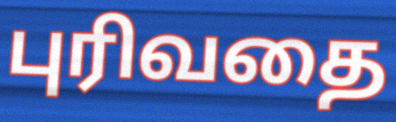
புரிவதை